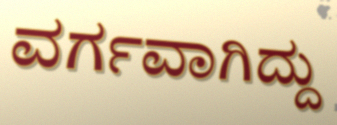
ವರ್ಗವಾಗಿದ್ದು